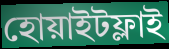
হোয়াইটফ্লাই